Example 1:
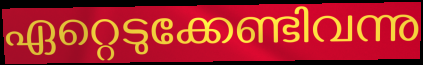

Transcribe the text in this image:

ഏറ്റെടുക്കേണ്ടിവന്നു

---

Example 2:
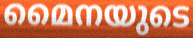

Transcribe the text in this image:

മൈനയുടെ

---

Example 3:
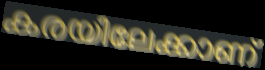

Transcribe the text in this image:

കരയിലേക്കാണ്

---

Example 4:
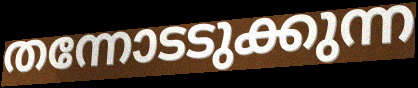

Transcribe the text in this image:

തന്നോടടുക്കുന്ന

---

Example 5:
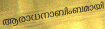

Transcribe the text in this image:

ആരാധനാബിംബമായി